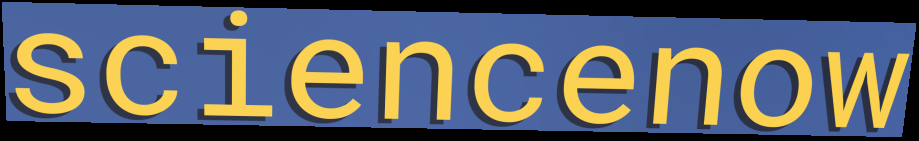
sciencenow